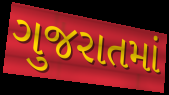
ગુજરાતમાં